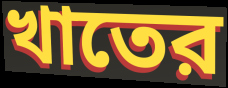
খাতের